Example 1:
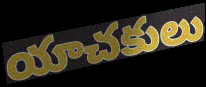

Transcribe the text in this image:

యాచకులు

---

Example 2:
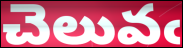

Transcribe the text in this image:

చెలువఁ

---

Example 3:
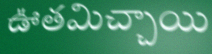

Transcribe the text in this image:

ఊతమిచ్చాయి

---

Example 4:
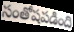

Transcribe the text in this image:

సంతోషపడింది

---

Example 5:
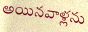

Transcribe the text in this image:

అయినవాళ్లను